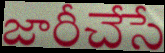
జారీచేసే